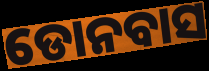
ଡୋନବାସ